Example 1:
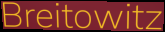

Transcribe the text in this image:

Breitowitz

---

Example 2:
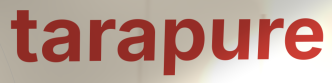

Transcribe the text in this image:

tarapure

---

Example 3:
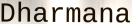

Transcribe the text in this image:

Dharmana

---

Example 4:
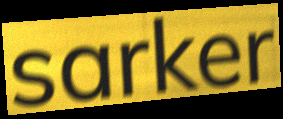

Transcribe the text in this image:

sarker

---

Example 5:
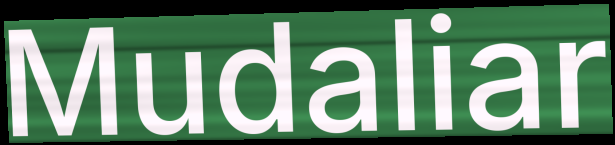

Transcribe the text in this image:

Mudaliar